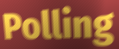
Polling